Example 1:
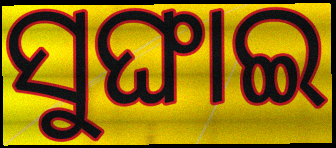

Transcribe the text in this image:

ସୁଙ୍ଘାଇ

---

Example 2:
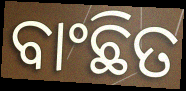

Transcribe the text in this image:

ବାଂଛିତ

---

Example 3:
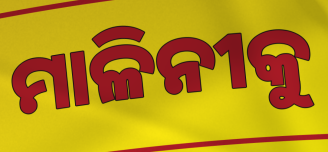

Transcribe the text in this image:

ମାଳିନୀକୁ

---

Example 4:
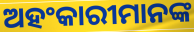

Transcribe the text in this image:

ଅହଂକାରୀମାନଙ୍କ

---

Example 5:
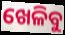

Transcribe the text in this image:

ଖେଳିବୁ